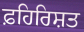
ਫ਼ਹਿਰਿਸ਼ਤ